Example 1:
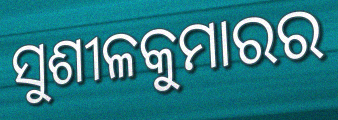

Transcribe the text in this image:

ସୁଶୀଳକୁମାରର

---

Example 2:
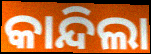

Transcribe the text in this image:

କାନ୍ଦିଲା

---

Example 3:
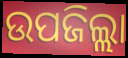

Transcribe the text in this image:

ଉପଜିଲ୍ଲା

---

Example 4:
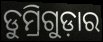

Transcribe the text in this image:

ଡୁମ୍ରିଗୁଡ଼ାର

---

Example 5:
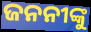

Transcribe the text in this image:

ଜନନୀଙ୍କୁ